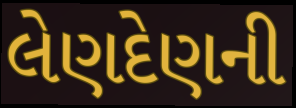
લેણદેણની